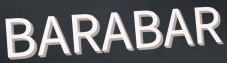
BARABAR